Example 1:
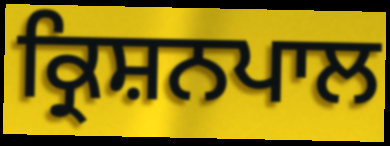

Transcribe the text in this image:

ਕ੍ਰਿਸ਼ਨਪਾਲ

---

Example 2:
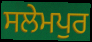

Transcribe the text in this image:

ਸਲੇਮਪੁਰ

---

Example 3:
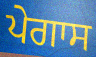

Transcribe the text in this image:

ਪੇਗਾਸ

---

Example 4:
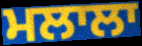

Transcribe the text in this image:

ਮਲਾਲਾ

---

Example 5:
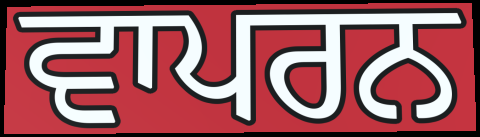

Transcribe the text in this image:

ਵਾਪਰਨ